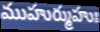
ముహుర్ముహుః